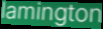
lamington